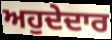
ਅਹੁਦੇਦਾਰ